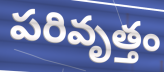
పరివృత్తం